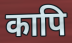
कापि